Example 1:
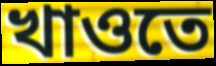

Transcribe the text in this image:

খাওতে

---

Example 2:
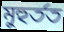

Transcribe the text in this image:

মুহুৰ্তত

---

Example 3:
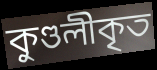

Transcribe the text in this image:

কুণ্ডলীকৃত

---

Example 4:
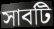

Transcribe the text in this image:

সাবটি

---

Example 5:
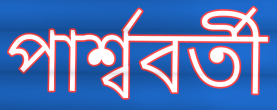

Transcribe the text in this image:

পাৰ্শ্ববৰ্তী